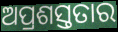
ଅପ୍ରଶସ୍ତତାର